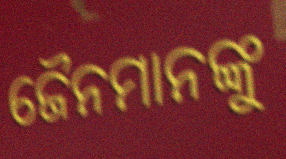
ଜୈନମାନଙ୍କୁ